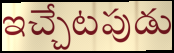
ఇచ్చేటపుడు